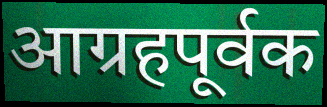
आग्रहपूर्वक